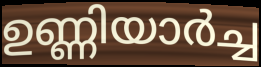
ഉണ്ണിയാർച്ച